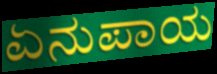
ಏನುಪಾಯ